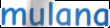
mulana